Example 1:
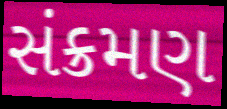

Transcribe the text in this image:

સંક્રમણ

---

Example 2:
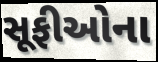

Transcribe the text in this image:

સૂફીઓના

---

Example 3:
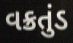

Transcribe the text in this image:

વક્રતુંડ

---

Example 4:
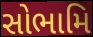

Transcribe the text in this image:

સોભામિ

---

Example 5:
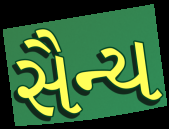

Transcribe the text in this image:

સૈન્ય